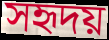
সহৃদয়